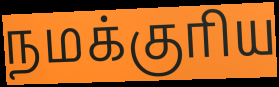
நமக்குரிய